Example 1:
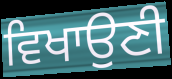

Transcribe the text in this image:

ਵਿਖਾਉਣੀ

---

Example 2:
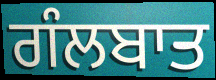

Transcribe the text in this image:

ਗੰਲਬਾਤ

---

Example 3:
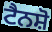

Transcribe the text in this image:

ਟੈਨਸ਼ੋ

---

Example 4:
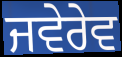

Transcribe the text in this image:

ਜਵੇਰੇਵ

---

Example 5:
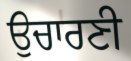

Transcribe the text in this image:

ਉਚਾਰਣੀ